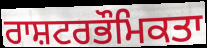
ਰਾਸ਼ਟਰਭੌਮਿਕਤਾ